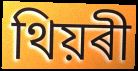
থিয়ৰী